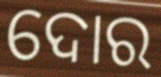
ଦୋର